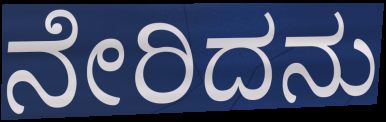
ನೇರಿದನು